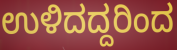
ಉಳಿದದ್ದರಿಂದ